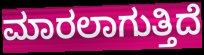
ಮಾರಲಾಗುತ್ತಿದೆ